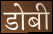
डोबी